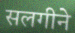
सलगीने